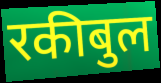
रकीबुल